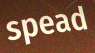
spead